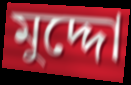
মুদ্দো